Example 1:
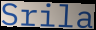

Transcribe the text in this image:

Srila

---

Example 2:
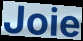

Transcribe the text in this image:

Joie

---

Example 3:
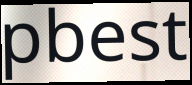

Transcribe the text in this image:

pbest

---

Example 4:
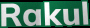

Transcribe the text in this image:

Rakul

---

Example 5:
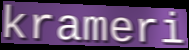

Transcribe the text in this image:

krameri